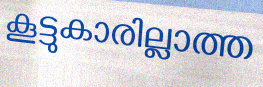
കൂട്ടുകാരില്ലാത്ത